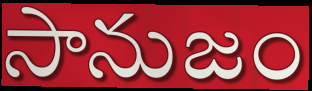
సానుజం